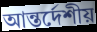
আন্তর্দেশীয়